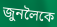
জুনলৈকে